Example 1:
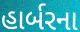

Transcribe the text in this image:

હાર્બરના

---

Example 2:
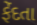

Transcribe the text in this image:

ફેંદતા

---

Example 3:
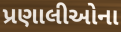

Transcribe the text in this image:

પ્રણાલીઓના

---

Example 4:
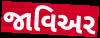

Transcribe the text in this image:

જાવિઅર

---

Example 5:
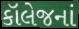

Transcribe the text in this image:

કૉલેજનાં